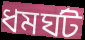
ধমর্ঘট